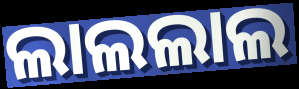
ଲାଲଲାଲ